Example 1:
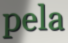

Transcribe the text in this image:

pela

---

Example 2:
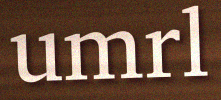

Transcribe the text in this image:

umrl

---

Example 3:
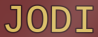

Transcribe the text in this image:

JODI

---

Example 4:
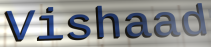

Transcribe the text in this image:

Vishaad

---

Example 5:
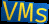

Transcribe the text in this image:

VMs